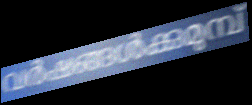
വർഷങ്ങൾക്കുമുമ്പ്